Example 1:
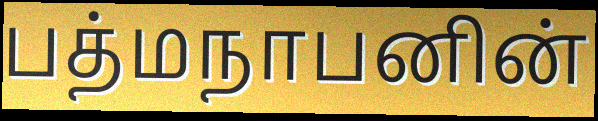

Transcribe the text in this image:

பத்மநாபனின்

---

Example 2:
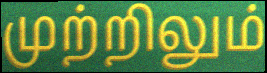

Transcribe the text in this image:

முற்றிலும்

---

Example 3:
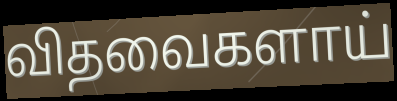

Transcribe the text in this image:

விதவைகளாய்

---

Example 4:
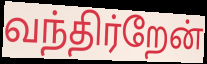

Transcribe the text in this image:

வந்திர்றேன்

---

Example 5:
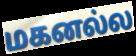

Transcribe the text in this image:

மகனல்ல